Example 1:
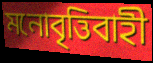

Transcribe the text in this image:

মনোবৃত্তিবাহী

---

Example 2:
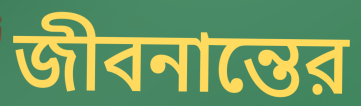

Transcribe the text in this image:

জীবনান্তের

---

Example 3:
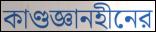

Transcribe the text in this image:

কাণ্ডজ্ঞানহীনের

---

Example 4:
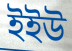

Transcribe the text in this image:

ইইউ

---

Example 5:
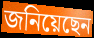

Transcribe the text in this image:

জনিয়েছেন